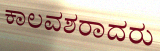
ಕಾಲವಶರಾದರು